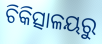
ଚିକିତ୍ସାଳୟରୁ